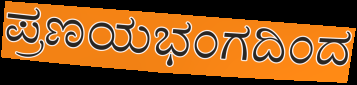
ಪ್ರಣಯಭಂಗದಿಂದ